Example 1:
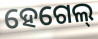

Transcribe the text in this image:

ହେଗେଲ୍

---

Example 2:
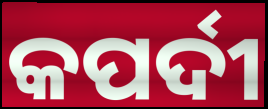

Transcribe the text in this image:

କପର୍ଦୀ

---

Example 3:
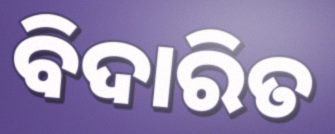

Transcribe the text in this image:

ବିଦାରିତ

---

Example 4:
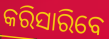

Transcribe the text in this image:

କରିସାରିବେ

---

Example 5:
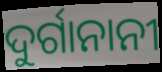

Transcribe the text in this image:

ଦୁର୍ଗାନାନୀ